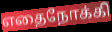
எதைநோக்கி